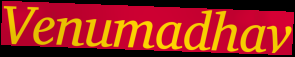
Venumadhav